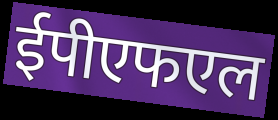
ईपीएफएल